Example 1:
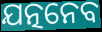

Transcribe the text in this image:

ଯତ୍ନନେବ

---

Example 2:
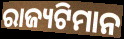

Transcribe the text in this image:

ରାଜ୍ୟଟିମାନ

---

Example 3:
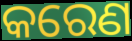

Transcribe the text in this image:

କରେଣ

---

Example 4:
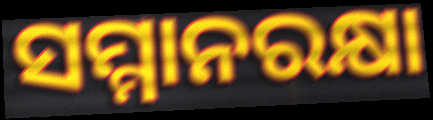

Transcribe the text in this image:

ସମ୍ମାନରକ୍ଷା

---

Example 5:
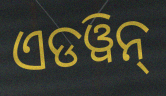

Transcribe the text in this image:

ଏଡୱିନ୍